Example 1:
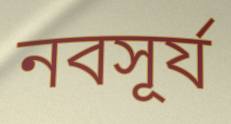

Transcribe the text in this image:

নবসূর্য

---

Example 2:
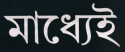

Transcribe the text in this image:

মাধ্যেই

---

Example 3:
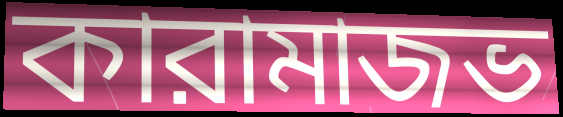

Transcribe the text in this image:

কারামাজভ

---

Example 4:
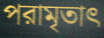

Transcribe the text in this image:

পরামৃতাৎ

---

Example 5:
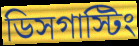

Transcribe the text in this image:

ডিসগাস্টিং